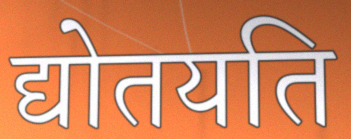
द्योतयति